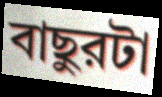
বাছুরটা